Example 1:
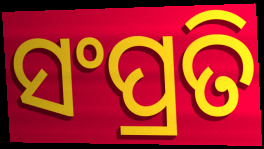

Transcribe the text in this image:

ସଂପ୍ରତି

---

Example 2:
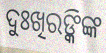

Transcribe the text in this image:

ଦୁଃଖିରଙ୍କିଙ୍କ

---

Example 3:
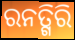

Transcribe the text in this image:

ରନତ୍ଗିରି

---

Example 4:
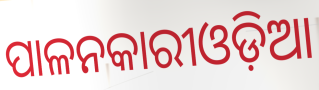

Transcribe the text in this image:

ପାଳନକାରୀଓଡ଼ିଆ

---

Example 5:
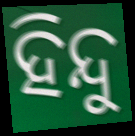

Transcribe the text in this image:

ହିନ୍ଦୁ